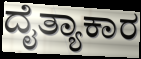
ದೈತ್ಯಾಕಾರ